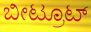
ಬೀಟ್ರೂಟ್